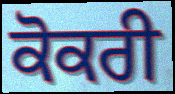
ਕੋਕਰੀ